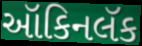
ઑકિનલૅક